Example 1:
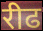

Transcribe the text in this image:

रीढ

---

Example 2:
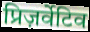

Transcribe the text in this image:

प्रिज़र्वेटिव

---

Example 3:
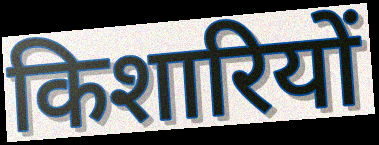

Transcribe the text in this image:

किशारियों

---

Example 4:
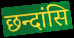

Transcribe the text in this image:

छन्दांसि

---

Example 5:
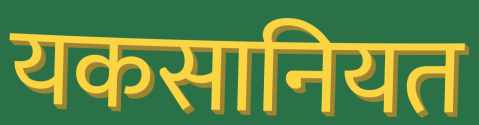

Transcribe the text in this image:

यकसानियत